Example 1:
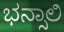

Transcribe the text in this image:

ಭನ್ಸಾಲಿ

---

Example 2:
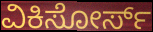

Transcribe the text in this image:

ವಿಕಿಸೋರ್ಸ್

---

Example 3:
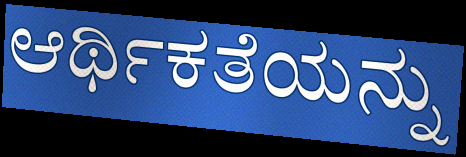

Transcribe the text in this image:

ಆರ್ಥಿಕತೆಯನ್ನು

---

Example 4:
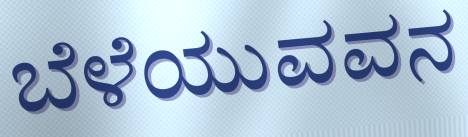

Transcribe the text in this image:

ಬೆಳೆಯುವವನ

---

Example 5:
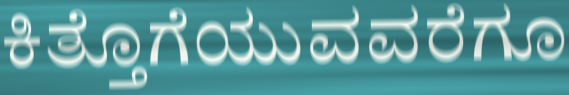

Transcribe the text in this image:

ಕಿತ್ತೊಗೆಯುವವರೆಗೂ